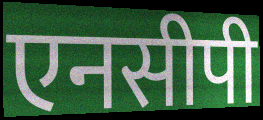
एनसीपी